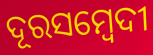
ଦୂରସମ୍ବେଦୀ